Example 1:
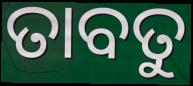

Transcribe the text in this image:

ତାବତୁ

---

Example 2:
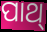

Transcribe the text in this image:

ପାଥ୍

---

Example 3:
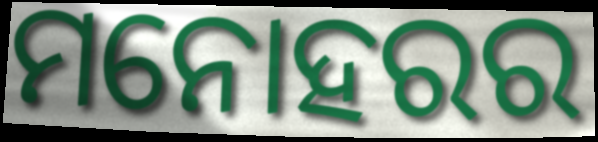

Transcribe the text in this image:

ମନୋହରର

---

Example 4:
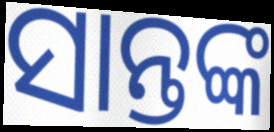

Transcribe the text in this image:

ସାନ୍ତଙ୍କ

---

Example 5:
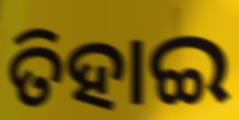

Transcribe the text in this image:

ତିହାଇ